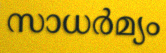
സാധർമ്യം